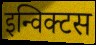
इन्विक्टस